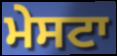
ਮੇਸਟਾ